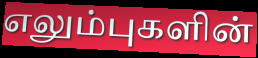
எலும்புகளின்